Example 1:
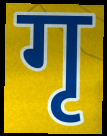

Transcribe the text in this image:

गृ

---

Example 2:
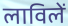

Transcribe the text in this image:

लाविलें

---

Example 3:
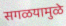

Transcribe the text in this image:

सगळयामुळे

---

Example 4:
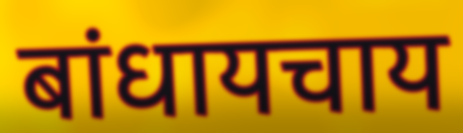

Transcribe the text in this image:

बांधायचाय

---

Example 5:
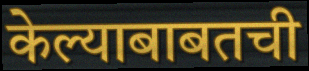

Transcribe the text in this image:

केल्याबाबतची